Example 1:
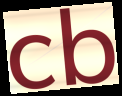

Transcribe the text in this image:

cb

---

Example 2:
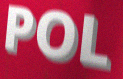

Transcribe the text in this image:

POL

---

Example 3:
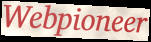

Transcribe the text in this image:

Webpioneer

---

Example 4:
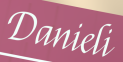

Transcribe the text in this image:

Danieli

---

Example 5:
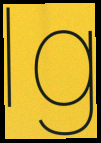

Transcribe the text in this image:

Ig